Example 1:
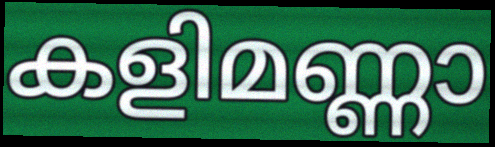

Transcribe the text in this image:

കളിമണ്ണാ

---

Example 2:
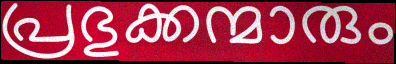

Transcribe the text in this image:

പ്രഭുക്കന്മാരും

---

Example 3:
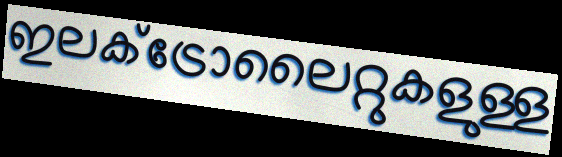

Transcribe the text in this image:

ഇലക്ട്രോലൈറ്റുകളുള്ള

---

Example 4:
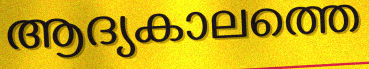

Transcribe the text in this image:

ആദ്യകാലത്തെ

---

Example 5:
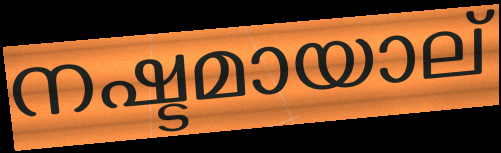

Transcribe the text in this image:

നഷ്ടമായാല്